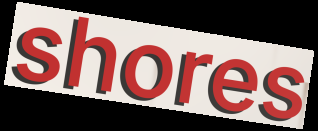
shores